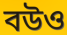
বউও